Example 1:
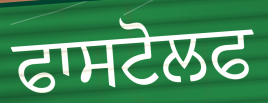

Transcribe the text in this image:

ਫਾਸਟੋਲਫ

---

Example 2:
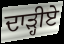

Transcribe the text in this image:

ਦਾੜ੍ਹੀਏ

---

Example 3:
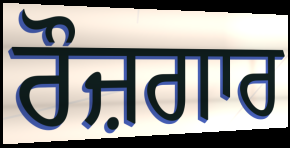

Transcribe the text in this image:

ਰੌਜ਼ਗਾਰ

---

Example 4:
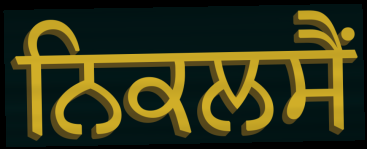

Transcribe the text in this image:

ਨਿਕਲਸੈਂ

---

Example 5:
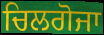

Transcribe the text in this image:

ਚਿਲਗੋਜਾ